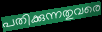
പതിക്കുന്നതുവരെ